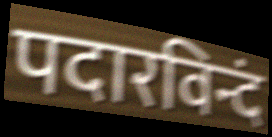
पदारविन्दं